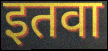
इतवा